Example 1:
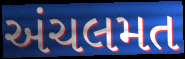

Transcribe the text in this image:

અંચલમત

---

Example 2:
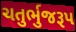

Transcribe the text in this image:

ચતુર્ભુજરૂપ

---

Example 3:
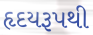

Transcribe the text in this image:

હૃદયરૂપથી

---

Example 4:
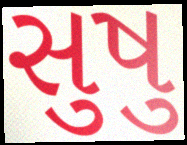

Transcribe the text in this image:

સુષુ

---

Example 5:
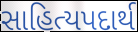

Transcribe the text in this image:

સાહિત્યપદાર્થ